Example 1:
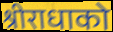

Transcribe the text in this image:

श्रीराधाको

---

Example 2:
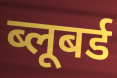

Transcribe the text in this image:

ब्लूबर्ड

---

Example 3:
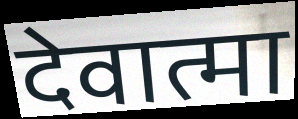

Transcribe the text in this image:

देवात्मा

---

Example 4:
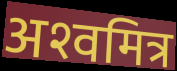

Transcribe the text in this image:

अश्वमित्र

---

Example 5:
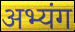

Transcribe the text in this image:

अभ्यंग